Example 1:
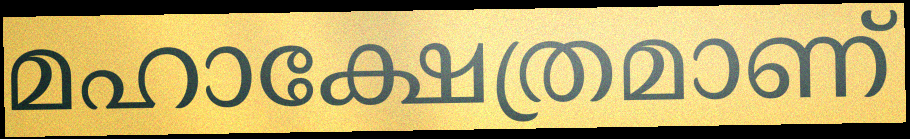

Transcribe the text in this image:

മഹാക്ഷേത്രമാണ്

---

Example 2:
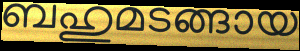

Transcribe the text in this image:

ബഹുമടങ്ങായ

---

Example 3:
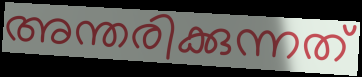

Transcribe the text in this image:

അന്തരിക്കുന്നത്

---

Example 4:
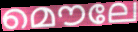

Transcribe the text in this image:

മൌലേ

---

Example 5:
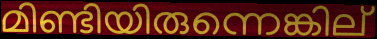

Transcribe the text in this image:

മിണ്ടിയിരുന്നെങ്കില്